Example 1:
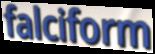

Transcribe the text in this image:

falciform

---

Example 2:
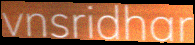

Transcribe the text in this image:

vnsridhar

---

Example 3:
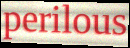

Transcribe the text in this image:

perilous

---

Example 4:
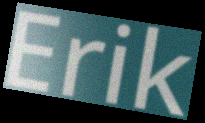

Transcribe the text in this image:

Erik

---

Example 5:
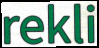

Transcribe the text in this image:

rekli